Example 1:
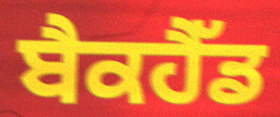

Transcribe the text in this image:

ਬੈਕਹੈੱਡ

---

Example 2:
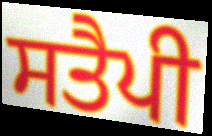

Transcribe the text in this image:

ਸਤੈਪੀ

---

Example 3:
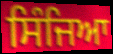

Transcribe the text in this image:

ਸਿੰਜਿਆ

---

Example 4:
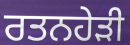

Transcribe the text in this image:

ਰਤਨਹੇੜੀ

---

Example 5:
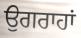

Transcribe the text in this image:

ਉਗਰਾਹਾਂ